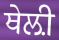
ਥੇਲ਼ੀ